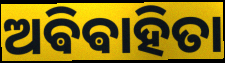
ଅଵିଵାହିତା